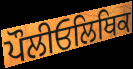
ਪੌਲੀਓਲਿਥਿਕ